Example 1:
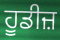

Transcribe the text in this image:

ਹੂਡੀਜ਼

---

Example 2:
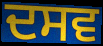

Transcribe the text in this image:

ਦਸਵ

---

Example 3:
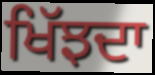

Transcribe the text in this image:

ਖਿੱਝਦਾ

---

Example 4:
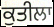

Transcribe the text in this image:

ਕੁਤੀਲਾ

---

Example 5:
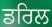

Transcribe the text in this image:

ਡਰਿਲ